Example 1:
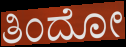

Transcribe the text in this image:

ತಿಂದೋ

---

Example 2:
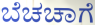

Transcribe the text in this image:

ಬೆಚಚಾಗೆ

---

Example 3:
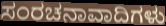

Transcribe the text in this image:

ಸಂರಚನಾವಾದಿಗಳು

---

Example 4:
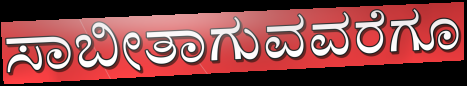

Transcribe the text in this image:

ಸಾಬೀತಾಗುವವರೆಗೂ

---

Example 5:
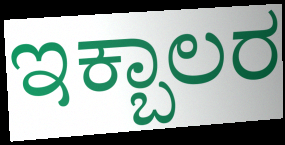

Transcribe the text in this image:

ಇಕ್ಬಾಲರ